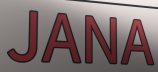
JANA